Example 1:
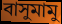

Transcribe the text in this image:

বাসুমামু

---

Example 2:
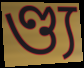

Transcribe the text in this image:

ণ্ড্য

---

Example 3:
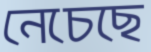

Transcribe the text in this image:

নেচেছে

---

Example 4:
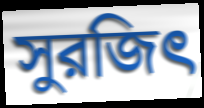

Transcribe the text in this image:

সুরজিৎ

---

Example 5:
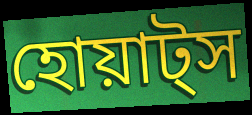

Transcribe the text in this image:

হোয়াট্স